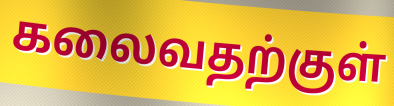
கலைவதற்குள்